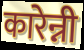
कारेन्नी